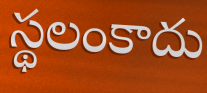
స్థలంకాదు